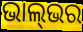
ଭାଲ୍‌ଭର